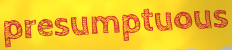
presumptuous